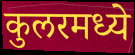
कुलरमध्ये